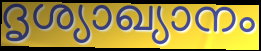
ദൃശ്യാഖ്യാനം